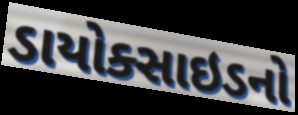
ડાયોક્સાઇડનો